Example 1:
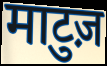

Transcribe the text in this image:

माटुज़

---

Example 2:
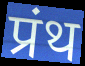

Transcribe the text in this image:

प्रंथ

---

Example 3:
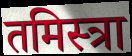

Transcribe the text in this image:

तमिस्त्रा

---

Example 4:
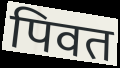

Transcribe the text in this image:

पिवत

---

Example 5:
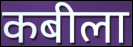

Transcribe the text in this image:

कबीला